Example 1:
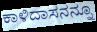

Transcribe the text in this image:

ಕಾಳಿದಾಸನನ್ನೂ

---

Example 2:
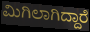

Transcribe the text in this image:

ಮಿಗಿಲಾಗಿದ್ದಾರೆ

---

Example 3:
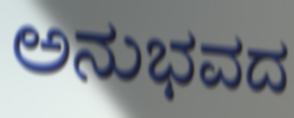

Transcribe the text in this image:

ಅನುಭವದ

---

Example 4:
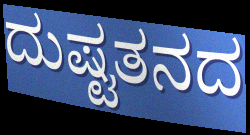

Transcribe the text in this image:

ದುಷ್ಟತನದ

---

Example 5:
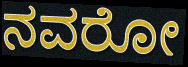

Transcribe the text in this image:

ನವರೋ